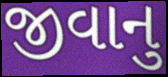
જીવાનુ